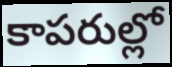
కాపరుల్లో